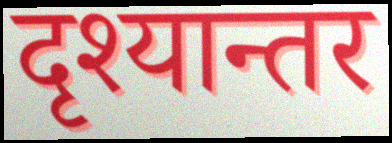
दृश्यान्तर